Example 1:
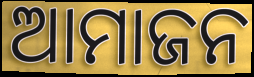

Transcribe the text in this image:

ଆମାଜନ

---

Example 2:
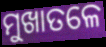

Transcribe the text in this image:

ମୁଖାତଳେ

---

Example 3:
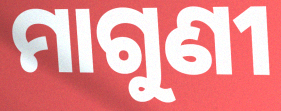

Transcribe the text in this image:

ମାଗୁଣୀ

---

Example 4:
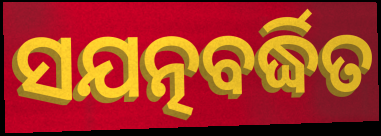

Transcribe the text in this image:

ସଯତ୍ନବର୍ଦ୍ଧିତ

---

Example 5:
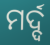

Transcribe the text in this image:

ମର୍ଦ୍ଦ